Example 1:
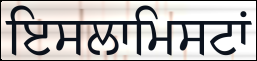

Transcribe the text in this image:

ਇਸਲਾਮਿਸਟਾਂ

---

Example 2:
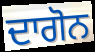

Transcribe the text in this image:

ਦਾਗੋਨ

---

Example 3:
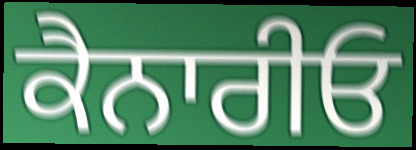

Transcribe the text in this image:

ਕੈਨਾਰੀਓ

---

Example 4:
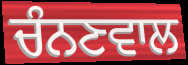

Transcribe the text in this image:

ਚੰਨਣਵਾਲ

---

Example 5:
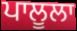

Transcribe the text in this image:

ਪਾਲੂਲਾ